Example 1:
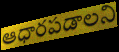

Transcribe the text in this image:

ఆధారపడాలని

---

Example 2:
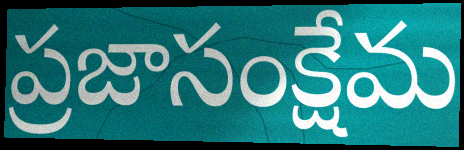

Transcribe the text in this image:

ప్రజాసంక్షేమ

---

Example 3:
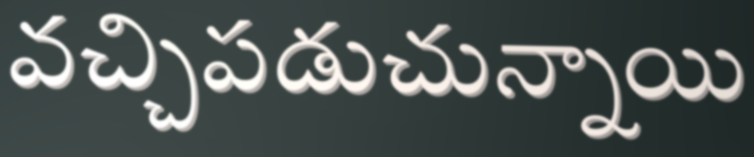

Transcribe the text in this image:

వచ్చిపడుచున్నాయి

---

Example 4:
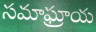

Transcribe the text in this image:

సమాఘ్రాయ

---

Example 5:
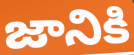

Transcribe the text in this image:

జానికి